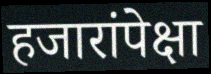
हजारांपेक्षा